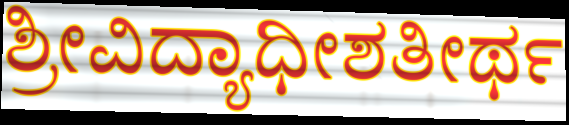
ಶ್ರೀವಿದ್ಯಾಧೀಶತೀರ್ಥ